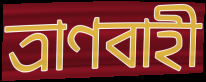
ত্রাণবাহী